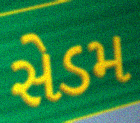
સેડમ